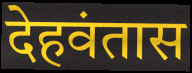
देहवंतास